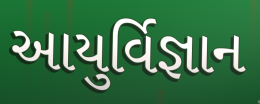
આયુર્વિજ્ઞાન